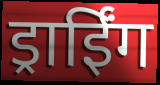
ड्राईिंग